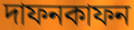
দাফনকাফন